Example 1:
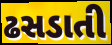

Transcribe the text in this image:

ઢસડાતી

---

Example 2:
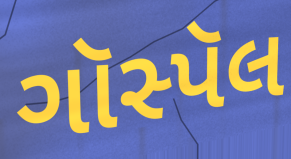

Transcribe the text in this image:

ગૉસ્પૅલ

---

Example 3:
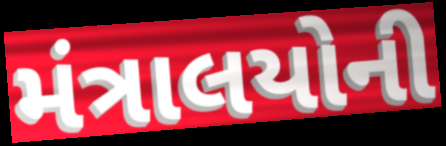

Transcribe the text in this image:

મંત્રાલયોની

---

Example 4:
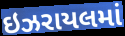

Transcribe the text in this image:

ઇઝરાયલમાં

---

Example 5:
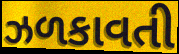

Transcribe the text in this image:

ઝળકાવતી